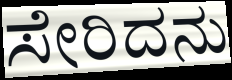
ಸೇರಿದನು